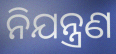
ନିଯନ୍ତ୍ରଣ